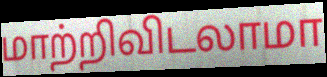
மாற்றிவிடலாமா